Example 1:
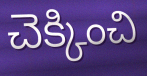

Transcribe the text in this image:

చెక్కించి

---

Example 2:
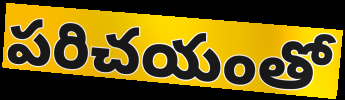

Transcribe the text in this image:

పరిచయంతో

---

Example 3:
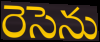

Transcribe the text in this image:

రెసెను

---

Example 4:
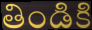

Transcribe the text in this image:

తిండికి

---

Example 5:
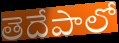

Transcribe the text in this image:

తెదేపాలో